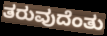
ತರುವುದೆಂತು